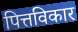
पित्तविकार